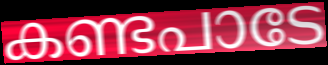
കണ്ടപാടേ